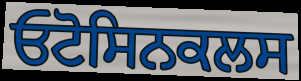
ਓਟੋਸਿਨਕਲਸ